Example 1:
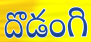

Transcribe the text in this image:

దొడంగి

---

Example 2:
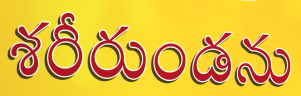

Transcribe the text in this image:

శరీరుండను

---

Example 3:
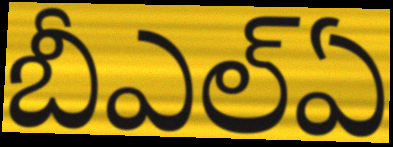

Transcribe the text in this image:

బీఎల్ఏ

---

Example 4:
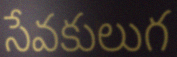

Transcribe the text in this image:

సేవకులుగ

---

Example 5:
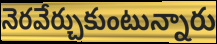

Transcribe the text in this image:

నెరవేర్చుకుంటున్నారు